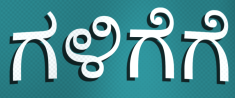
ಗಳಿಗೆಗೆ